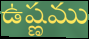
ఉష్ణము